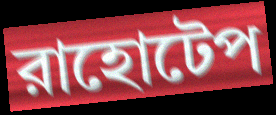
রাহোটেপ